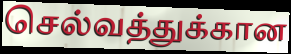
செல்வத்துக்கான